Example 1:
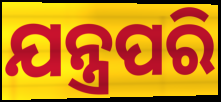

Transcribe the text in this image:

ଯନ୍ତ୍ରପରି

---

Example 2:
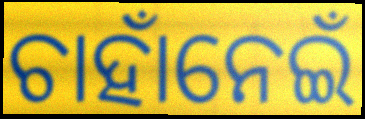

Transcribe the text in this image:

ଚାହାଁନେଇଁ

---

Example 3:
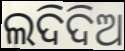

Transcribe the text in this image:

ଲଦିଦିଅ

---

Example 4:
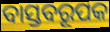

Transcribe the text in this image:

ବାସ୍ତବରୂପକ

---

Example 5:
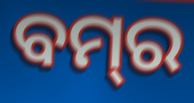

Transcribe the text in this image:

ବମ୍‌ର